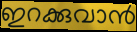
ഇറക്കുവാൻ